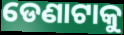
ଡେଣାଟାକୁ